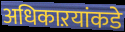
अधिकाऱयांकडे